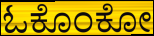
ಓಕೊಂಕೋ